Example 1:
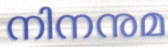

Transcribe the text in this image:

നിനനുമ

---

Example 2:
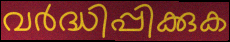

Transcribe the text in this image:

വർദ്ധിപ്പിക്കുക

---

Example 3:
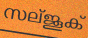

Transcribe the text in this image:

സല്ജൂക്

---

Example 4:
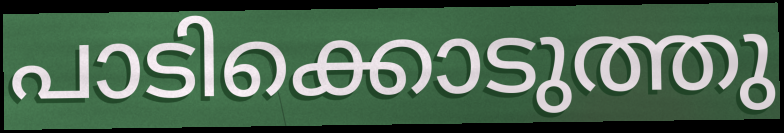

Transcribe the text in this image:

പാടിക്കൊടുത്തു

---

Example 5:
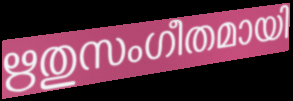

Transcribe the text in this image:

ഋതുസംഗീതമായി